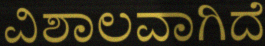
ವಿಶಾಲವಾಗಿದೆ